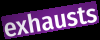
exhausts